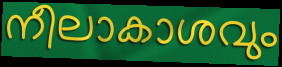
നീലാകാശവും